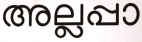
അല്ലപ്പാ